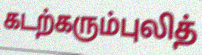
கடற்கரும்புலித்